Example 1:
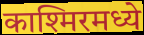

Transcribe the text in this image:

काश्मिरमध्ये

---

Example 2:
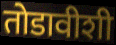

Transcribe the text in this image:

तोडावीशी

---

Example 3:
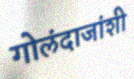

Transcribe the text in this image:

गोलंदाजांशी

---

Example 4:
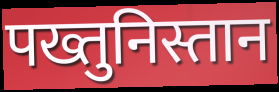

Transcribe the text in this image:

पख्तुनिस्तान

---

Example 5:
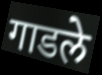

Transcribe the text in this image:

गाडले